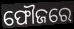
ଫୌଜରେ